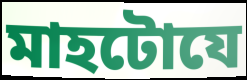
মাহটোযে